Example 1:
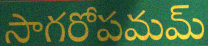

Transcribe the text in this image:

సాగరోపమమ్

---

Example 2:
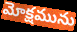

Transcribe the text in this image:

మోక్షమును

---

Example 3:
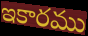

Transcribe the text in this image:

ఇకారము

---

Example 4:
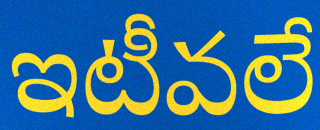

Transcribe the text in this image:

ఇటీవలే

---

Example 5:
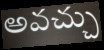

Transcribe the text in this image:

అవచ్చు